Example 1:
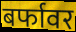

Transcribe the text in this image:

बर्फावर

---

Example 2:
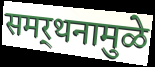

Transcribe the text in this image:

समर्थनामुळे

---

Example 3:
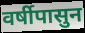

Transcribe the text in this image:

वर्षीपासुन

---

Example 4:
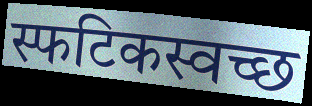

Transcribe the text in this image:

स्फटिकस्वच्छ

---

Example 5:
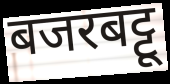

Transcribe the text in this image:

बजरबट्टू